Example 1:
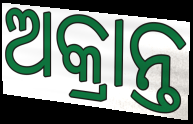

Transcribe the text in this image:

ଅକ୍ରାନ୍ତ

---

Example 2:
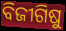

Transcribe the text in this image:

ବିଜୀଗିଷୁ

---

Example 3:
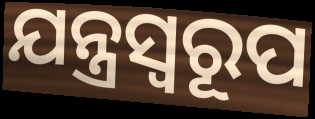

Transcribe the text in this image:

ଯନ୍ତ୍ରସ୍ୱରୂପ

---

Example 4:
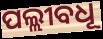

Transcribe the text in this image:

ପଲ୍ଲୀବଧୂ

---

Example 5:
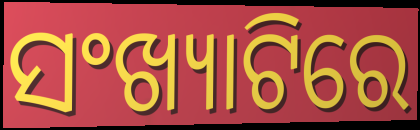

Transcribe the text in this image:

ସଂଖ୍ୟାଟିରେ